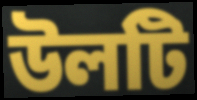
উলটি